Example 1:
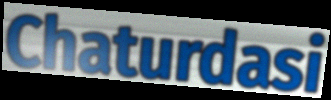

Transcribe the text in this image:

Chaturdasi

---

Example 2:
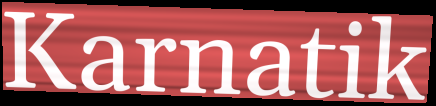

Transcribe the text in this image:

Karnatik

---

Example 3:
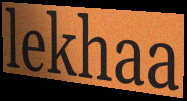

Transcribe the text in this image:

lekhaa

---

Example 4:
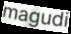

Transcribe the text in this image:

magudi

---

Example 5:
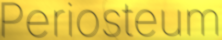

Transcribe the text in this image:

Periosteum